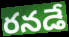
రనడే